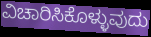
ವಿಚಾರಿಸಿಕೊಳ್ಳುವುದು